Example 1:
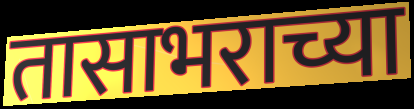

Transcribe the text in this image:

तासाभराच्या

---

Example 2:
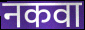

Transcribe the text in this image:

नकवा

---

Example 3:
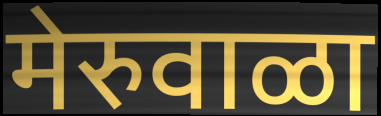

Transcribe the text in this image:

मेरुवाळा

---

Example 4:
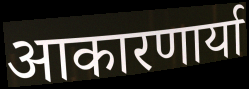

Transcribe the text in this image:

आकारणार्या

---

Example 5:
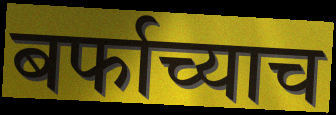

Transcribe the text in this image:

बर्फाच्याच